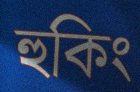
হুকিং